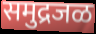
समुद्रजळ